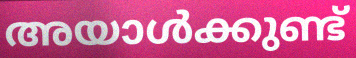
അയാൾക്കുണ്ട്